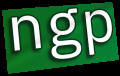
ngp